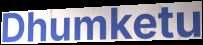
Dhumketu